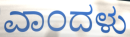
ಎಾಂದಳು